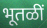
भूतळीं